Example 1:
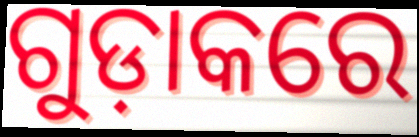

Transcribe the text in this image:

ଗୁଡ଼ାକରେ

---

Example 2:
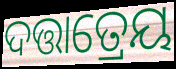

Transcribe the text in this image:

ଦତ୍ତାତ୍ରେୟ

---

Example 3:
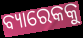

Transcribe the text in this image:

ବ୍ୟାରେକକୁ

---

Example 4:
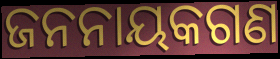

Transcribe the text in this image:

ଜନନାୟକଗଣ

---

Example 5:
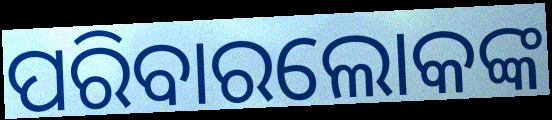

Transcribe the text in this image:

ପରିବାରଲୋକଙ୍କ